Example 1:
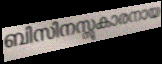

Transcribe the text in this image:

ബിസിനസ്സുകാരനായ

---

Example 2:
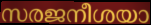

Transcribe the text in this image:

സരജനീശയാ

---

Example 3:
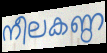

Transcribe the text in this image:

നീലകണ്ഠ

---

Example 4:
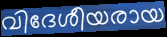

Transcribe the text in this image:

വിദേശീയരായ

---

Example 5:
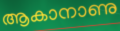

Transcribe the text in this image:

ആകാനാണു